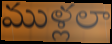
ముళ్లలా